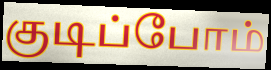
குடிப்போம்